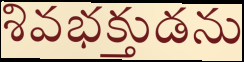
శివభక్తుడను